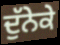
ਦੁੱਨੇਕੇ